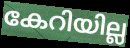
കേറിയില്ല